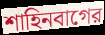
শাহিনবাগের